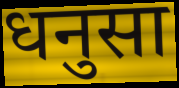
धनुसा